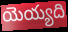
యెయ్యది